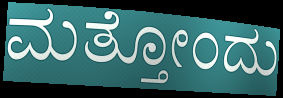
ಮತ್ತೋಂದು